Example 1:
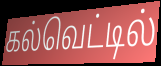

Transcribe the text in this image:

கல்வெட்டில்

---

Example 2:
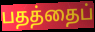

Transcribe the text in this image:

பதத்தைப்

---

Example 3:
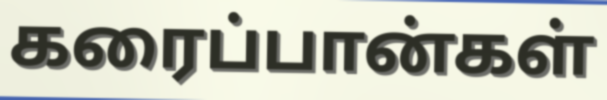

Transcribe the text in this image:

கரைப்பான்கள்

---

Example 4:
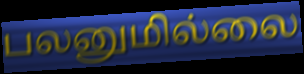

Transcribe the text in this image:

பலனுமில்லை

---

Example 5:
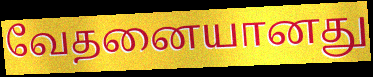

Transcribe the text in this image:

வேதனையானது